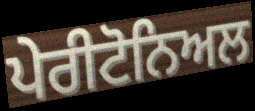
ਪੇਰੀਟੋਨਿਅਲ